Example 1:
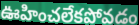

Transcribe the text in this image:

ఊహించలేకపోవడం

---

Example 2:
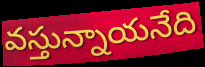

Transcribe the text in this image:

వస్తున్నాయనేది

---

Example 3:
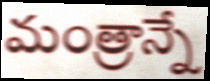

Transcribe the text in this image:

మంత్రాన్నే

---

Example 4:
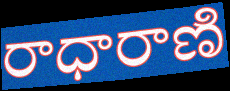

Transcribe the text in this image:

రాధారాణి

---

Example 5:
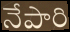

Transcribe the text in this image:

నేపారి